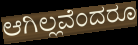
ಆಗಿಲ್ಲವೆಂದರೂ